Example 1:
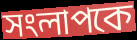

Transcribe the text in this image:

সংলাপকে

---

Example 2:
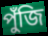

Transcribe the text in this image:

পুঁজি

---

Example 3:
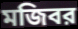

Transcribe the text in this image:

মজিবর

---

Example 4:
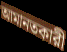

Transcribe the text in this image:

আমানতকারী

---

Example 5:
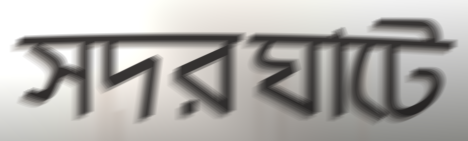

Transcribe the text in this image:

সদরঘাটে